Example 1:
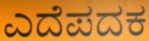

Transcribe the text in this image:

ಎದೆಪದಕ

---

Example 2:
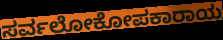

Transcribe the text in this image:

ಸರ್ವಲೋಕೋಪಕಾರಾಯ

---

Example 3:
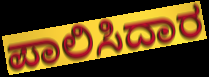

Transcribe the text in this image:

ಪಾಲಿಸಿದಾರ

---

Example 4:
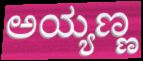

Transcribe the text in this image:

ಅಯ್ಯಣ್ಣ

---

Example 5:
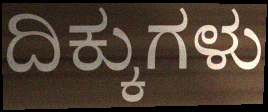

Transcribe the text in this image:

ದಿಕ್ಕುಗಳು